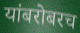
यांबरोबरच